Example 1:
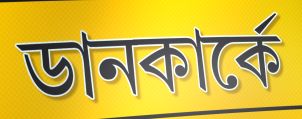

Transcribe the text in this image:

ডানকার্কে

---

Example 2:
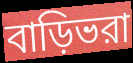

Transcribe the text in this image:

বাড়িভরা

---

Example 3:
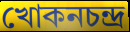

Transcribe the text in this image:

খোকনচন্দ্র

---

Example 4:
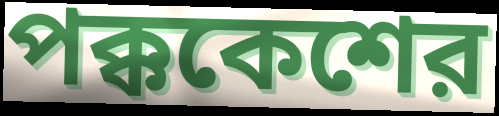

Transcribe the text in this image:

পক্ককেশের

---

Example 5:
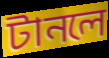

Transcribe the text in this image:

টানলে